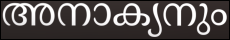
അനാക്യനും